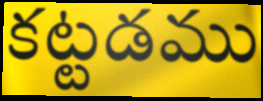
కట్టడము